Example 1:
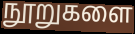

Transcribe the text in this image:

நூறுகளை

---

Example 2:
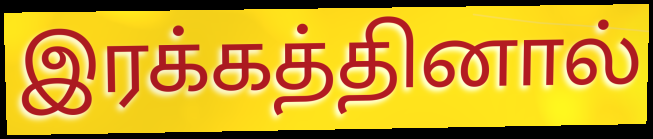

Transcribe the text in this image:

இரக்கத்தினால்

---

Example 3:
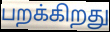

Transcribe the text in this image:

பறக்கிறது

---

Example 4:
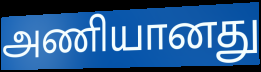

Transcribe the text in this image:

அணியானது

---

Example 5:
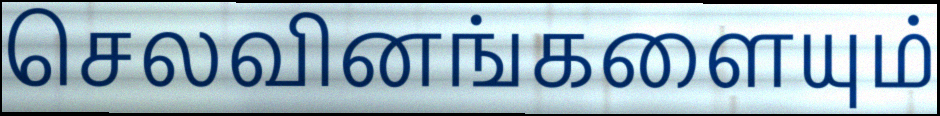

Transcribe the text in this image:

செலவினங்களையும்